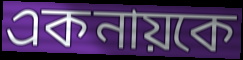
একনায়কে